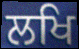
ਲਖਿ